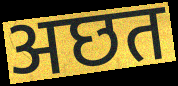
अछत